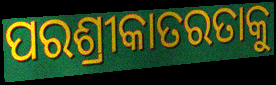
ପରଶ୍ରୀକାତରତାକୁ